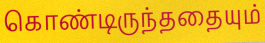
கொண்டிருந்ததையும்